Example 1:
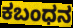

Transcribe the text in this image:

ಕಬಂಧನ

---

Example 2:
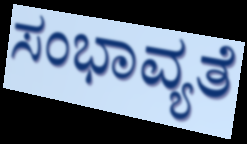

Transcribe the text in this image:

ಸಂಭಾವ್ಯತೆ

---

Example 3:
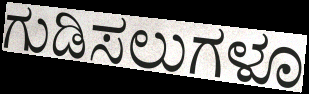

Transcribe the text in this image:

ಗುಡಿಸಲುಗಳೂ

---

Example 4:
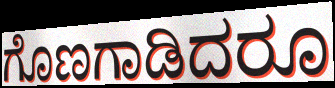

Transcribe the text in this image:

ಗೊಣಗಾಡಿದರೂ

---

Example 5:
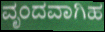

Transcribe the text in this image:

ವೃಂದವಾಗಿಹ